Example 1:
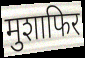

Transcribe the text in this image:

मुशाफिर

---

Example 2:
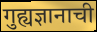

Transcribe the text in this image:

गुह्यज्ञानाची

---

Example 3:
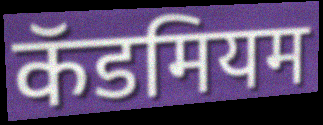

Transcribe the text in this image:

कॅडमियम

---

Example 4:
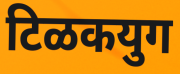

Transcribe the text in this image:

टिळकयुग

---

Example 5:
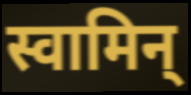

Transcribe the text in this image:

स्वामिन्